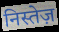
निस्तेज़